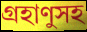
গ্রহাণুসহ